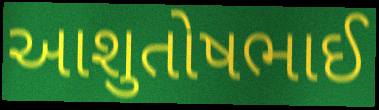
આશુતોષભાઈ